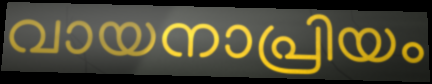
വായനാപ്രിയം